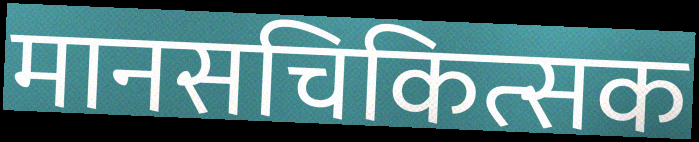
मानसचिकित्सक